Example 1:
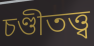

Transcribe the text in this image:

চণ্ডীতত্ত্ব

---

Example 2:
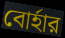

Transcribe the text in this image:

বোর্হার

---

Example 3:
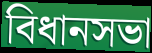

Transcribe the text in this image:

বিধানসভা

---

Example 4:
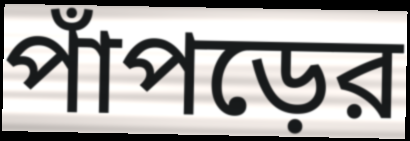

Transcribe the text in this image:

পাঁপড়ের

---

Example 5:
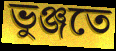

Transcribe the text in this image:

ভুঞ্জতে